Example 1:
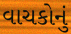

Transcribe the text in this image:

વાચકોનું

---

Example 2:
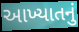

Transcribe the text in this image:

આખ્યાતનું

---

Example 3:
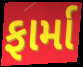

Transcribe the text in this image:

ફાર્મા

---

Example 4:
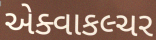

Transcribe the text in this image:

એક્વાકલ્ચર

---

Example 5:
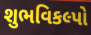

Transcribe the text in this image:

શુભવિકલ્પો